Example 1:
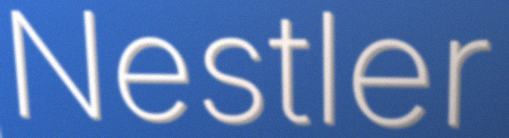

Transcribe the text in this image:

Nestler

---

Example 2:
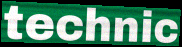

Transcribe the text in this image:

technic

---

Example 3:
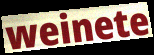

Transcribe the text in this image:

weinete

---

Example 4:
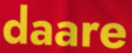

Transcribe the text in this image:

daare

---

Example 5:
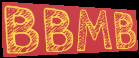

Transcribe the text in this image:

BBMB